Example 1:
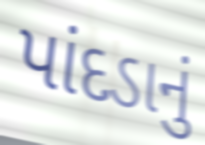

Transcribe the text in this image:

પાંદડાનું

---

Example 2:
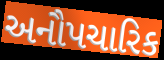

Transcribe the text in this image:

અનૌપચારિક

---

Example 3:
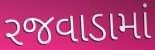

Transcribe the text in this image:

રજવાડામાં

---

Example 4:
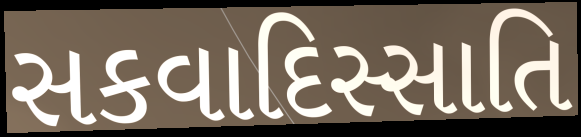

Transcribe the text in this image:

સકવાદિસ્સાતિ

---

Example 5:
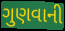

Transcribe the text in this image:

ગુણવાની